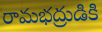
రామభద్రుడికి